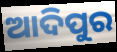
ଆଦିପୁର